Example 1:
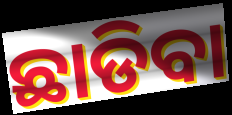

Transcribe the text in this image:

ଛାଡିବା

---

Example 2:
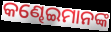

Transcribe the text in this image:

କଣ୍ଢେଇମାନଙ୍କ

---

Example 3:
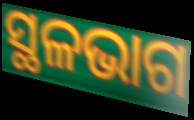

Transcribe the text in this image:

ସ୍ଥଳଭାଗ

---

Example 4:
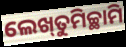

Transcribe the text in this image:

ଲେଖ୍‌ତୁମିଚ୍ଛାମି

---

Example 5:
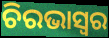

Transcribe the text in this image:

ଚିରଭାସ୍ଵର